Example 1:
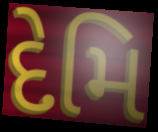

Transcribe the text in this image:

દેમિ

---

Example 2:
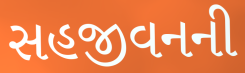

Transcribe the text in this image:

સહજીવનની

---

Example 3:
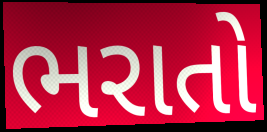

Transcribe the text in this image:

ભરાતો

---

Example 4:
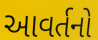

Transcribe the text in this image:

આવર્તનો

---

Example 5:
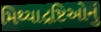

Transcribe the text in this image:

મિથ્યાદ્રષ્ટિઓનું